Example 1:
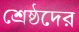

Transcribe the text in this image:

শ্রেষ্ঠদের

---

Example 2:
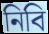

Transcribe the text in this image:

নিবি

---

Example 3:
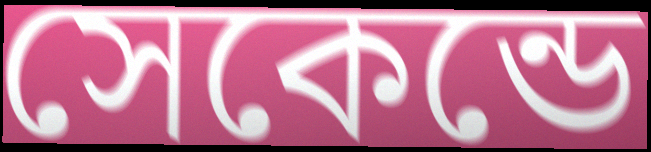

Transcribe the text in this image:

সেকেন্ডে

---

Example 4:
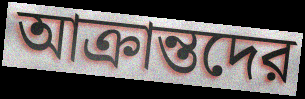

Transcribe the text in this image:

আক্রান্তদের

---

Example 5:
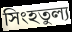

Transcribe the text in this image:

সিংহতুল্য